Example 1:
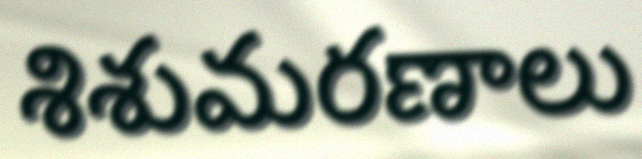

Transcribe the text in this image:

శిశుమరణాలు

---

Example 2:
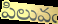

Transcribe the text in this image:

పిలువఁ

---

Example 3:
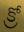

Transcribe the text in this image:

క్రో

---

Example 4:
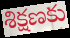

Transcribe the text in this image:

శిక్షణకు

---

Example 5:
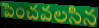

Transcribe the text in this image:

పెంచవలసిన